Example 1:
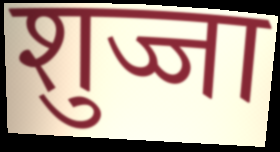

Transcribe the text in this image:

शुज्जा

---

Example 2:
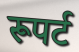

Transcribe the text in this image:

रूपर्ट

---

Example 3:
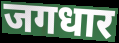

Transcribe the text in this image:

जगधार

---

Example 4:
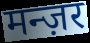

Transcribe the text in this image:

मन्ज़र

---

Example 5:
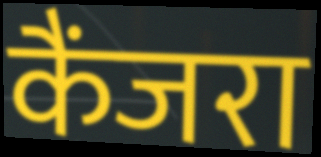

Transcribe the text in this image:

कैंजरा